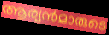
ആര്യൻമാരുടെ